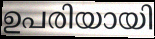
ഉപരിയായി